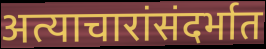
अत्याचारांसंदर्भात